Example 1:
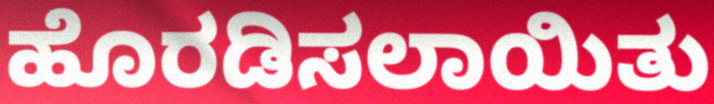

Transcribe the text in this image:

ಹೊರಡಿಸಲಾಯಿತು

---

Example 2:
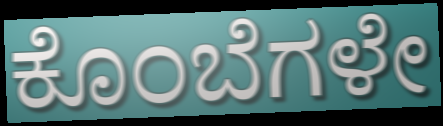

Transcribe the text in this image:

ಕೊಂಬೆಗಳೇ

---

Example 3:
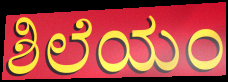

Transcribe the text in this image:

ಶಿಲೆಯಂ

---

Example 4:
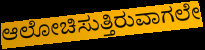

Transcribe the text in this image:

ಆಲೋಚಿಸುತ್ತಿರುವಾಗಲೇ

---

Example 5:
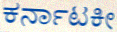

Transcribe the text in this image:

ಕರ್ನಾಟಕೀ